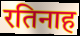
रतिनाह